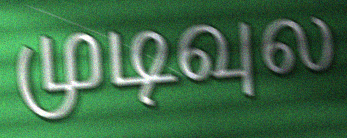
முடிவுல